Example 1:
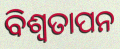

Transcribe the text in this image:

ବିଶ୍ବତାପନ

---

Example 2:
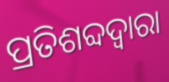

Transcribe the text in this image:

ପ୍ରତିଶବ୍ଦଦ୍ୱାରା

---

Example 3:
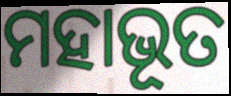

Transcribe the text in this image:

ମହାଭୂତ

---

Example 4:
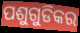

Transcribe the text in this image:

ପଶୁଗୁଡିକର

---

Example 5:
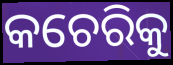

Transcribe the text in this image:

କଚେରିକୁ